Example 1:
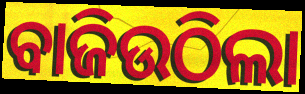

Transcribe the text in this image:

ବାଜିଉଠିଲା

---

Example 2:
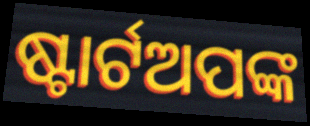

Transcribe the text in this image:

ଷ୍ଟାର୍ଟଅପଙ୍କ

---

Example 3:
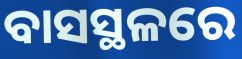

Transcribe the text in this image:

ବାସସ୍ଥଳରେ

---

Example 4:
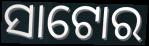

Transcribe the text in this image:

ସାଟୋର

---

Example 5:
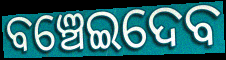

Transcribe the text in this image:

ବଞ୍ଚେଇଦେବ